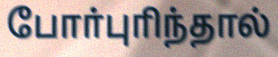
போர்புரிந்தால்